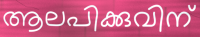
ആലപിക്കുവിന്